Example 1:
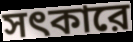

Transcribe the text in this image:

সৎকারে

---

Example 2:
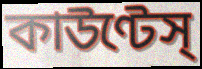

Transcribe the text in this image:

কাউণ্টেস্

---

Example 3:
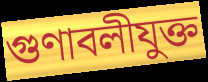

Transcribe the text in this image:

গুণাবলীযুক্ত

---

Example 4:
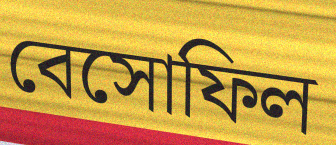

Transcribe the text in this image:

বেসোফিল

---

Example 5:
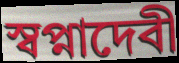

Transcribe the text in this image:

স্বপ্নাদেবী